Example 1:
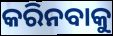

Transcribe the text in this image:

କରିନବାକୁ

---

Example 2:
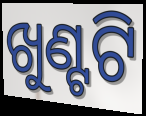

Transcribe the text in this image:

ଖୁଣ୍ଟଟି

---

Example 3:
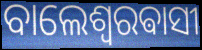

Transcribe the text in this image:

ବାଲେଶ୍ଵରଵାସୀ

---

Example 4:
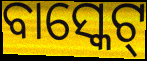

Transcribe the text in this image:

ବାସ୍କେଟ୍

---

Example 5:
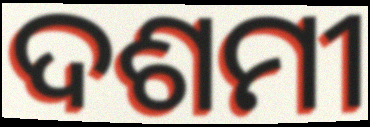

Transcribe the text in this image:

ଦଶମୀ